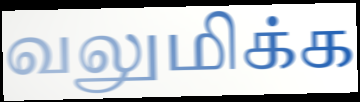
வலுமிக்க